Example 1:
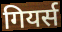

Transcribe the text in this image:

गियर्स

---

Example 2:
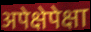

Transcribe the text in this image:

अपेक्षेपेक्षा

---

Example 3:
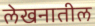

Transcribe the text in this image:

लेखनातील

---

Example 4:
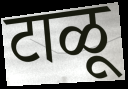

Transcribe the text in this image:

टाळू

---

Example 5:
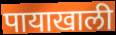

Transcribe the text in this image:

पायाखाली